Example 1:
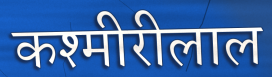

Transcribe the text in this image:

कश्मीरीलाल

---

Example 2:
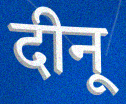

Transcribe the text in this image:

दीनू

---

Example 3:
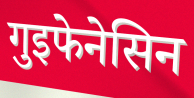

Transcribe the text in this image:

गुइफेनेसिन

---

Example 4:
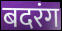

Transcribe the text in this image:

बदरंग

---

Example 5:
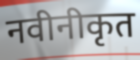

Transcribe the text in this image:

नवीनीकृत